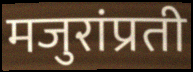
मजुरांप्रती